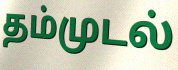
தம்முடல்